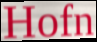
Hofn